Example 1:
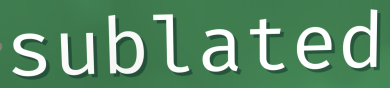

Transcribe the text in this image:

sublated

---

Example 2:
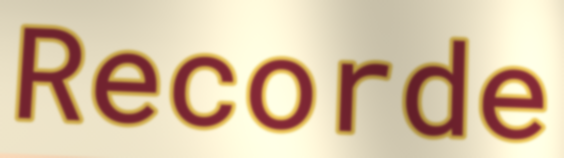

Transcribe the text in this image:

Recorde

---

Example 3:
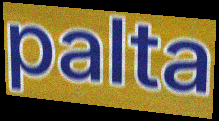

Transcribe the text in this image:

palta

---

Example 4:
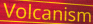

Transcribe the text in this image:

Volcanism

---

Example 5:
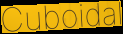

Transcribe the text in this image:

Cuboidal